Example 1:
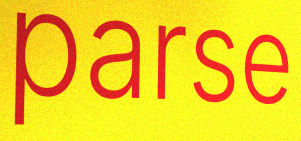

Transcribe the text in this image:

parse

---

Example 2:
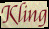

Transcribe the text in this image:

Kling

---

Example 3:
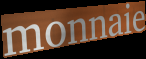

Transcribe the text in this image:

monnaie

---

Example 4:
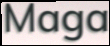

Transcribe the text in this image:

Maga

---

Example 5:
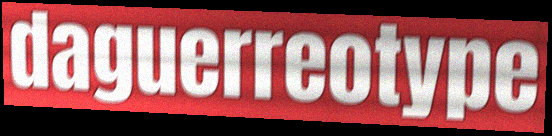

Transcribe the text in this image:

daguerreotype